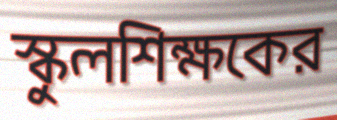
স্কুলশিক্ষকের